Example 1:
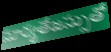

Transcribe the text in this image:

సూర్యతేజస్సుతో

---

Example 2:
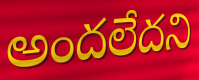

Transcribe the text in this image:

అందలేదని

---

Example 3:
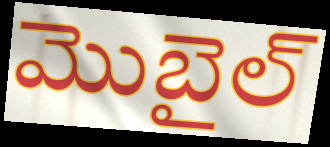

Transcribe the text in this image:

మొబైల్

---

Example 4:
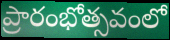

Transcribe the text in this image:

ప్రారంభోత్సవంలో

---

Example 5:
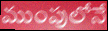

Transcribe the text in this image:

ముంపులోనే